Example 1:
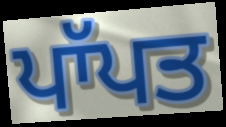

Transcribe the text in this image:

ਪਾੱਪਤ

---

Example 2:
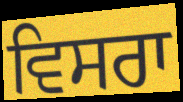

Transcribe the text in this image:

ਵਿਸਰਾ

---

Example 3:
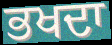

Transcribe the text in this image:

ਭਖਦਾ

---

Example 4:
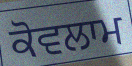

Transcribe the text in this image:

ਕੋਵਲਾਮ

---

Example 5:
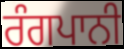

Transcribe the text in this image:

ਰੰਗਪਾਨੀ